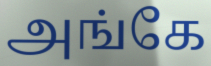
அங்கே